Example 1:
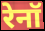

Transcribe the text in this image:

रेनॉ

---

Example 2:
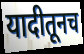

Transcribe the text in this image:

यादीतूनच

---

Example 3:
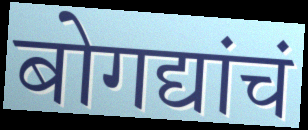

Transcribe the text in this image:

बोगद्यांचं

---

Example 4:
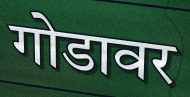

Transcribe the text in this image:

गोडावर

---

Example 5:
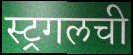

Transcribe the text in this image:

स्ट्रगलची